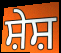
ਸ਼ੇਸ਼